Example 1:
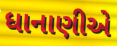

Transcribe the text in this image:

ધાનાણીએ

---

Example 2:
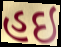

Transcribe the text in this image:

હઇ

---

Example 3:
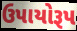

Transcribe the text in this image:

ઉપાયોરૂપ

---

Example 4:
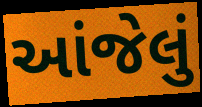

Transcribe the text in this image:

આંજેલું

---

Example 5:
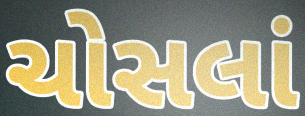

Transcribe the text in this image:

ચોસલાં